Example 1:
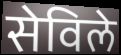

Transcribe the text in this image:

सेविले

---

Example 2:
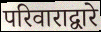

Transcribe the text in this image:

परिवाराद्वारे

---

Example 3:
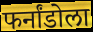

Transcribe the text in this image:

फर्नांडोला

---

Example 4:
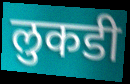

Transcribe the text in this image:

लुकडी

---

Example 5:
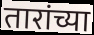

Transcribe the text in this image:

तारांच्या